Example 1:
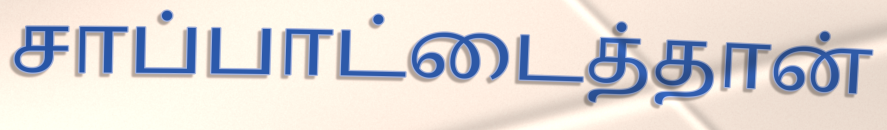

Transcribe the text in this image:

சாப்பாட்டைத்தான்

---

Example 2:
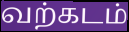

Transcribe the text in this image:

வற்கடம்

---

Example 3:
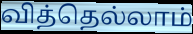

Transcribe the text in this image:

வித்தெல்லாம்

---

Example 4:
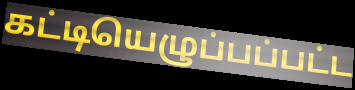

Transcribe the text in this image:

கட்டியெழுப்பப்பட்ட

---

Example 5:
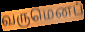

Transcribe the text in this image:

வருமெனப்